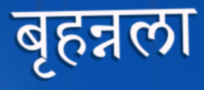
बृहन्नला